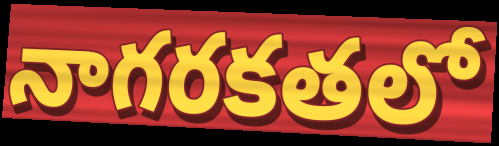
నాగరకతలో